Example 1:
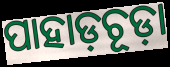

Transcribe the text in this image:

ପାହାଡ଼ଚୂଡ଼ା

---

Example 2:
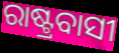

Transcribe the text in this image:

ରାଷ୍ଟ୍ରବାସୀ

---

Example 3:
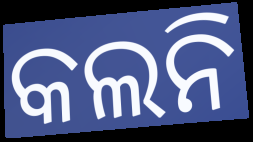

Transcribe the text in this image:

କଲନି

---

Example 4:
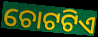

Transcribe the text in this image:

ଚୋଟଟିଏ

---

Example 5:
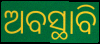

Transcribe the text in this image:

ଅବସ୍ଥାବି